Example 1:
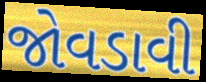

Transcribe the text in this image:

જોવડાવી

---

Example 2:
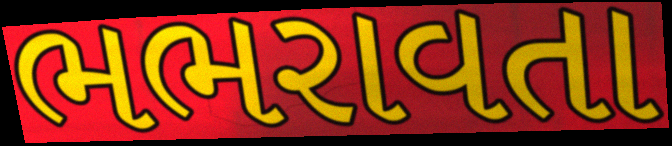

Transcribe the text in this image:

ભભરાવતા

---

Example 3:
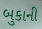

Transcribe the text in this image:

બુકાની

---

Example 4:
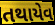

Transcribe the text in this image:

તથાયેવ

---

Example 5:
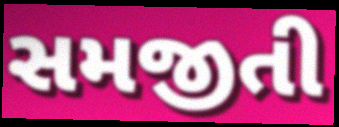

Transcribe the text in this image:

સમજીતી